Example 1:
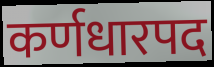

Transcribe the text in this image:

कर्णधारपद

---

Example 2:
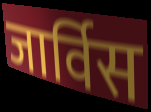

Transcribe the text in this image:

जार्विस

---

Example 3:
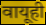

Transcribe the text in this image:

वायूही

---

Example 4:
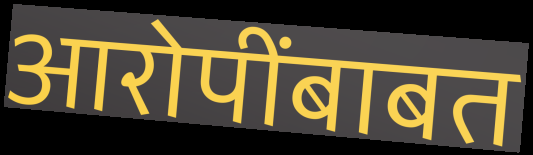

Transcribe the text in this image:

आरोपींबाबत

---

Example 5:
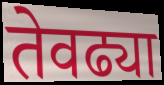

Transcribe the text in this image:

तेवढ्या